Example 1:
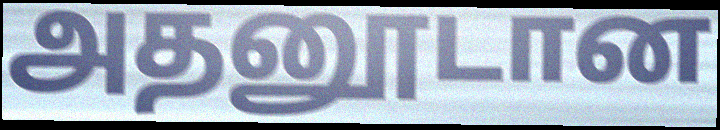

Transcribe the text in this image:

அதனூடான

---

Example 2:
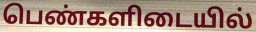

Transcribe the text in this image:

பெண்களிடையில்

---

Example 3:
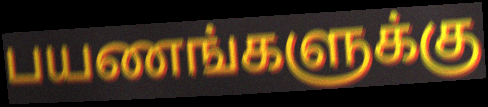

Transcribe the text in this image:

பயணங்களுக்கு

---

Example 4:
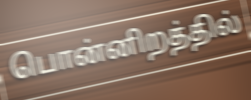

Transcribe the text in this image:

பொன்னிறத்தில்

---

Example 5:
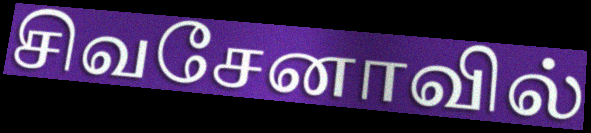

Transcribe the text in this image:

சிவசேனாவில்